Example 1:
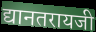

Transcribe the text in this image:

द्यानतरायजी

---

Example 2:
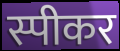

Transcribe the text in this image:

स्‍पीकर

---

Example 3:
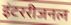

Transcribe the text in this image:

इंटररीजनल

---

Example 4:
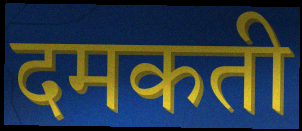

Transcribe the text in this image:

दमकती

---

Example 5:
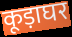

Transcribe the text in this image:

कूड़ाघर